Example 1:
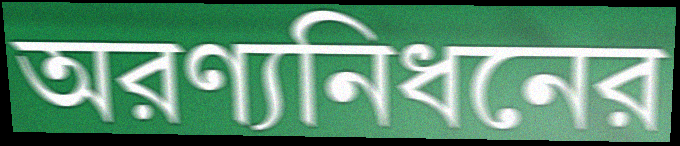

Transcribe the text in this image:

অরণ্যনিধনের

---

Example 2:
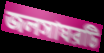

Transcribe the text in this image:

জলসাঘরটি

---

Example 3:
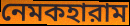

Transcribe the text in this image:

নেমকহারাম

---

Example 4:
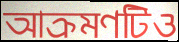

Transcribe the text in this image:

আক্রমণটিও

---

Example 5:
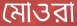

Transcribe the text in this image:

মোওরা